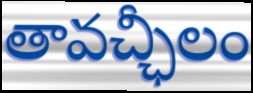
తావచ్ఛీలం